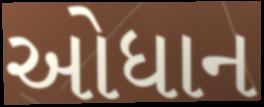
ઓધાન